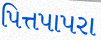
પિત્તપાપરા